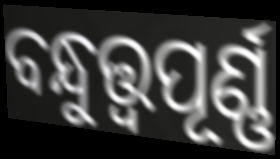
ବନ୍ଧୁତ୍ତ୍ୱପୂର୍ଣ୍ଣ